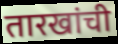
तारखांची